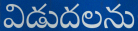
విడుదలను